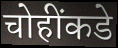
चोहींकडे